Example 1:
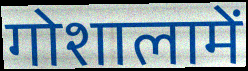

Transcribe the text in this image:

गोशालामें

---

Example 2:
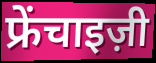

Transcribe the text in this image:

फ्रेंचाइज़ी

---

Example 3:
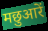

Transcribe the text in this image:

मछुआरें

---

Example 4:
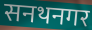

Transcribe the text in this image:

सनथनगर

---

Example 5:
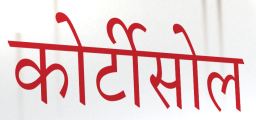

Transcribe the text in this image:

कोर्टीसोल